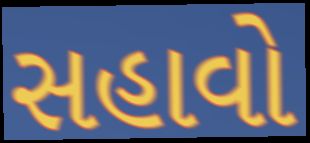
સહાવો